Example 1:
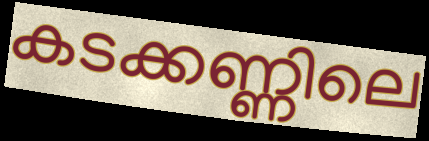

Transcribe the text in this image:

കടക്കണ്ണിലെ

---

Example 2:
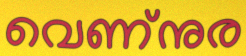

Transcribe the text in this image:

വെണ്നുര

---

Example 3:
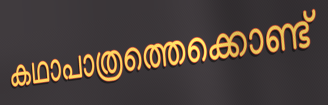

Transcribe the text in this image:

കഥാപാത്രത്തെക്കൊണ്ട്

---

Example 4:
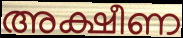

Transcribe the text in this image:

അക്ഷീണ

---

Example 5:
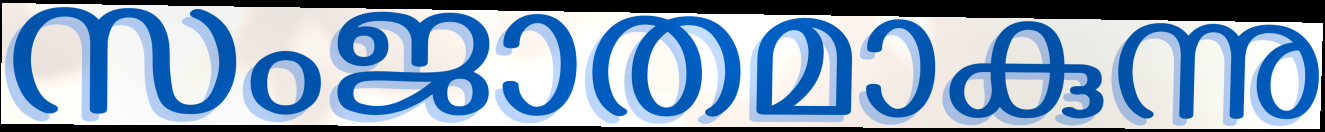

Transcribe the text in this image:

സംജാതമാകുന്നു